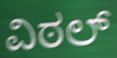
ವಿಠಲ್